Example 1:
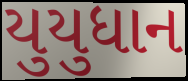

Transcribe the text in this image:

યુયુધાન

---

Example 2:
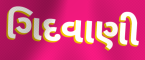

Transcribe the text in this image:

ગિદવાણી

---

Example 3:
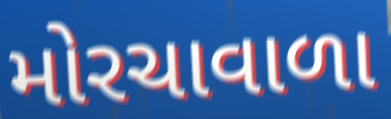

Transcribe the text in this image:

મોરચાવાળા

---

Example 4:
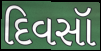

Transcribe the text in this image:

દિવસૉ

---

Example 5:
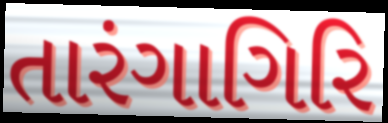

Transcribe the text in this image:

તારંગાગિરિ